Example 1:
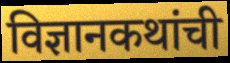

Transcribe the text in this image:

विज्ञानकथांची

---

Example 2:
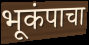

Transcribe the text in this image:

भूकंपाचा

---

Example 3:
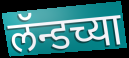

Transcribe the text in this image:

लॅन्डच्या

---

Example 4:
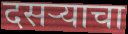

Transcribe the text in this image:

दसऱ्याचा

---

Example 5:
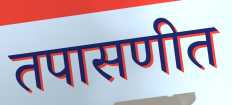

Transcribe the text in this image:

तपासणीत